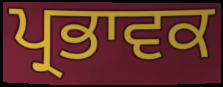
ਪ੍ਰਭਾਵਕ